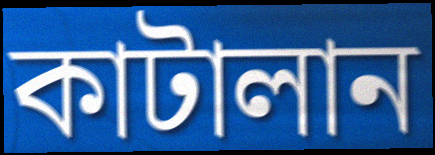
কাটালান